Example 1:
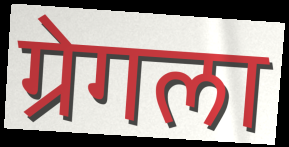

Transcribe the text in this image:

ग्रेगला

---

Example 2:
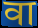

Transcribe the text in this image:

वा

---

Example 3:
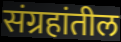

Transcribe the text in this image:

संग्रहांतील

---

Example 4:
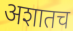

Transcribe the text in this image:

अशातच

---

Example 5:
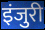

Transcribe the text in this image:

इंजुरी